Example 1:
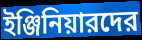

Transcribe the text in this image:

ইঞ্জিনিয়ারদের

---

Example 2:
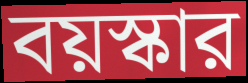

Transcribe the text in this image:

বয়স্কার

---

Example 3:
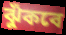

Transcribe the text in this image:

ঝুঁকবে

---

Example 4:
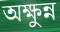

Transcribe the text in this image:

অক্ষুন্ন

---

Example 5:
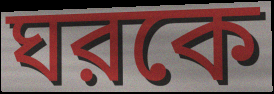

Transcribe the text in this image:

ঘরকে